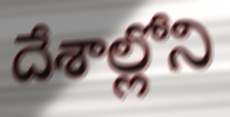
దేశాల్లోని